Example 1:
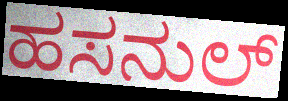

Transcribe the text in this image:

ಹಸನುಲ್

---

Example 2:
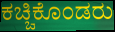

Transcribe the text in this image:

ಕಚ್ಚಿಕೊಂಡರು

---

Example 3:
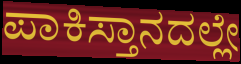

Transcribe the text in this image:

ಪಾಕಿಸ್ತಾನದಲ್ಲೇ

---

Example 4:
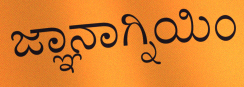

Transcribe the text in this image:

ಜ್ಞಾನಾಗ್ನಿಯಿಂ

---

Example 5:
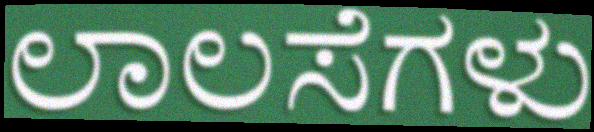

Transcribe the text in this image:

ಲಾಲಸೆಗಳು